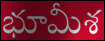
భూమీశ